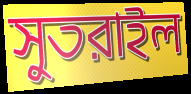
সুতরাইল